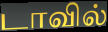
டாவில்